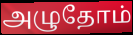
அழுதோம்